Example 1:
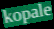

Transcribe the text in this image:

kopale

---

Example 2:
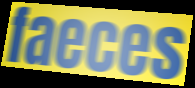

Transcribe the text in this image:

faeces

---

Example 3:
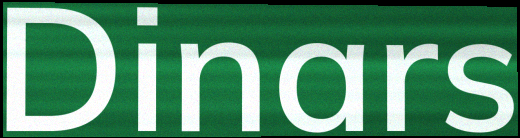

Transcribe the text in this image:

Dinars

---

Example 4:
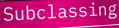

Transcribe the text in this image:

Subclassing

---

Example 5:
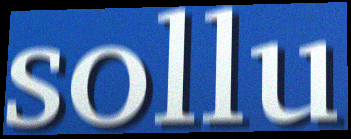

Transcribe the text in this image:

sollu